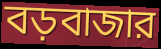
বড়বাজার